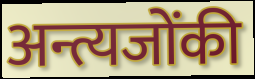
अन्त्यजोंकी